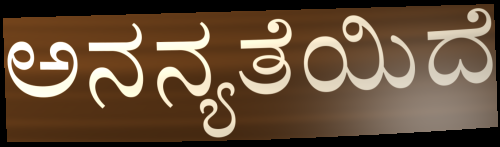
ಅನನ್ಯತೆಯಿದೆ